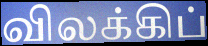
விலக்கிப்